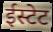
ईस्टेट